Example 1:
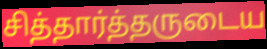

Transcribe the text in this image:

சித்தார்த்தருடைய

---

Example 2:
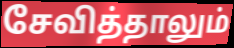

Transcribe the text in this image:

சேவித்தாலும்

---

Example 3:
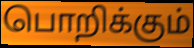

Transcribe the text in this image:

பொறிக்கும்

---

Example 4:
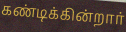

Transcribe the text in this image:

கண்டிக்கின்றார்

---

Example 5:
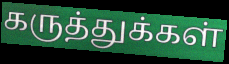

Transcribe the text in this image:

கருத்துக்கள்